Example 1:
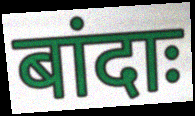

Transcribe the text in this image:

बांदाः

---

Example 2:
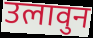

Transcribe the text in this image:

उलावुन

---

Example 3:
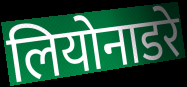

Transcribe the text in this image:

लियोनाडरे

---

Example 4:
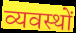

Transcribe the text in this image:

व्यवस्थों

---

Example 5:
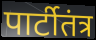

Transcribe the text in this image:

पार्टीतंत्र